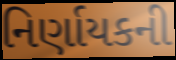
નિર્ણાયકની